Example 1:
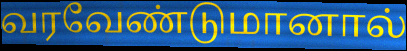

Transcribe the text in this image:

வரவேண்டுமானால்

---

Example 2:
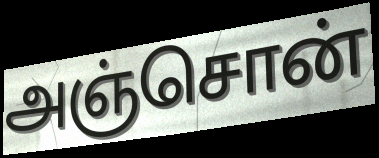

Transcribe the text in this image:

அஞ்சொன்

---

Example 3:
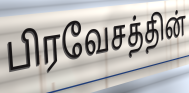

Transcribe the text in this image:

பிரவேசத்தின்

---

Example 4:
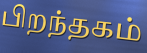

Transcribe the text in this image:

பிறந்தகம்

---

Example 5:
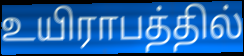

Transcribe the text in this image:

உயிராபத்தில்